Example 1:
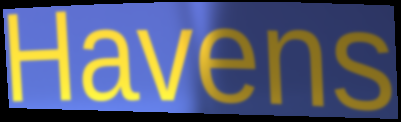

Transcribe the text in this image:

Havens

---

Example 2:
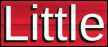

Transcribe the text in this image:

Little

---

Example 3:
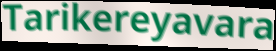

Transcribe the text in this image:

Tarikereyavara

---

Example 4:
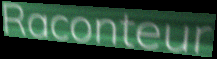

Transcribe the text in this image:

Raconteur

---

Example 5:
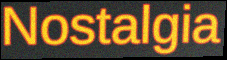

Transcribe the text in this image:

Nostalgia